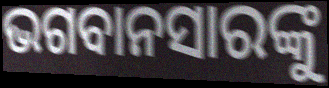
ଭଗବାନସାରଙ୍କୁ